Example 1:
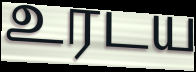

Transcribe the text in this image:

உரடய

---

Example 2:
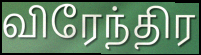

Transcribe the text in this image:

விரேந்திர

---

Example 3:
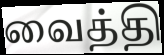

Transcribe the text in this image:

வைத்தி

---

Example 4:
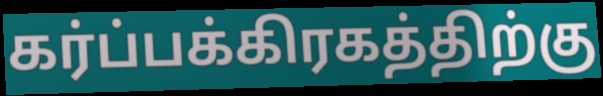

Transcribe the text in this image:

கர்ப்பக்கிரகத்திற்கு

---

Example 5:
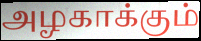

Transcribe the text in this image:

அழகாக்கும்